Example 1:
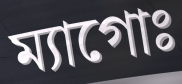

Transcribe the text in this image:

ম্যাগোঃ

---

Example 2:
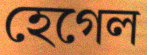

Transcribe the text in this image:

হেগেল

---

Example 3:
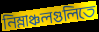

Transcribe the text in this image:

নিম্নাঞ্চলগুলিতে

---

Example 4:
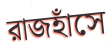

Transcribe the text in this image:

রাজহাঁসে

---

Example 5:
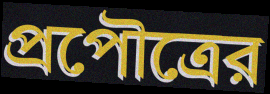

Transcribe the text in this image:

প্রপৌত্রের